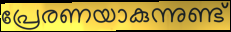
പ്രേരണയാകുന്നുണ്ട്